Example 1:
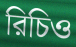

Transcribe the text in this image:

রিচিও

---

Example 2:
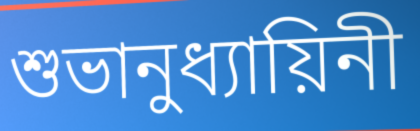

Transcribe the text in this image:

শুভানুধ্যায়িনী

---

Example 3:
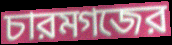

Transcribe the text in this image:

চারমগজের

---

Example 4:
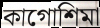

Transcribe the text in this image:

কাগোশিমা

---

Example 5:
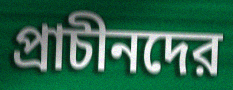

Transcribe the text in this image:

প্রাচীনদের